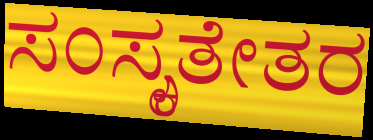
ಸಂಸ್ಕೃತೇತರ